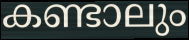
കണ്ടാലും